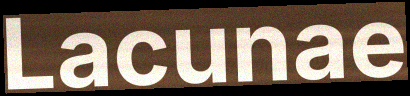
Lacunae